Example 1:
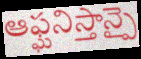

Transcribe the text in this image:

ఆఫ్ఘనిస్తాన్పై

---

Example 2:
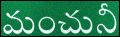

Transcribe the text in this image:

మంచునీ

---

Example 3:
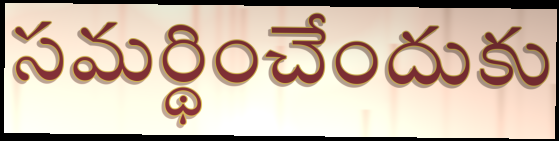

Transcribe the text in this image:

సమర్థించేందుకు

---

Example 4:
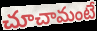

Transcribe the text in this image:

చూచామంటే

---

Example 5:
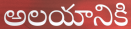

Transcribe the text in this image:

అలయానికి